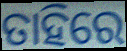
ତାହିରେ